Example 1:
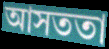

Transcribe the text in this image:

আসততা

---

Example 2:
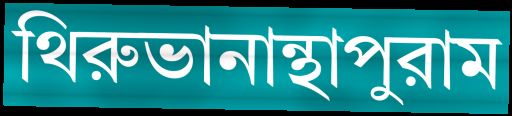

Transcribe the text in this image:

থিরুভানান্থাপুরাম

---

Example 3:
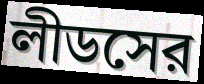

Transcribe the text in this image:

লীডসের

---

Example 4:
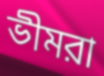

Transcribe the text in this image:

ভীমরা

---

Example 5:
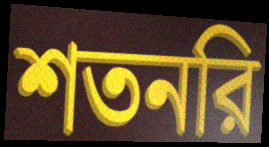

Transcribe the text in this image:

শতনরি